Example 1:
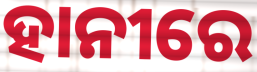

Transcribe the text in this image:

ହାନୀରେ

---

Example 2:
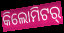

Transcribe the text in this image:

କିଲୋମିଟର୍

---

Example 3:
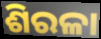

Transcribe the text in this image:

ଶିରଳା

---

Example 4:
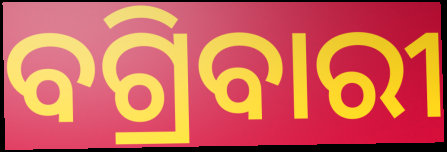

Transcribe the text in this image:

ବଗ୍ରିବାରୀ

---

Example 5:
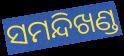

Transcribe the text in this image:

ସମନ୍ଦିଖଣ୍ଡ